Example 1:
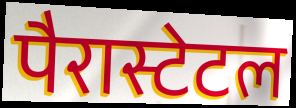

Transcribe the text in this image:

पैरास्टेटल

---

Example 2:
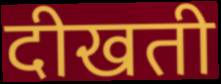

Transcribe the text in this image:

दीखती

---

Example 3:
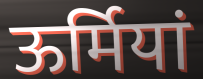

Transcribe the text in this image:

ऊर्मियां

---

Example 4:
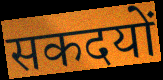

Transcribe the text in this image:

सकदयों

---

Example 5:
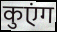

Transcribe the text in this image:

कुएंग